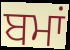
ਬਮਾਂ